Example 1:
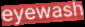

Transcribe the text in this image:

eyewash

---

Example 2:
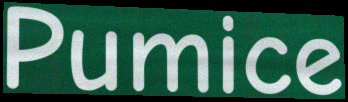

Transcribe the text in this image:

Pumice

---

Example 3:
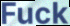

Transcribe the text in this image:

Fuck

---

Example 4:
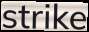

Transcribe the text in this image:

strike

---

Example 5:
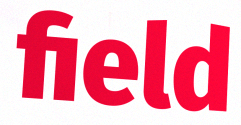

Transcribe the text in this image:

field